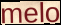
melo